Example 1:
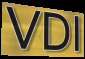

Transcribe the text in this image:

VDI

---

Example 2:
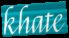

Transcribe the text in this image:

khate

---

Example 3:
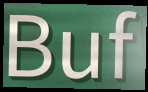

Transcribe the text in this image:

Buf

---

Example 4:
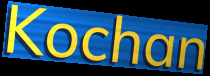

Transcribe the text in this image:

Kochan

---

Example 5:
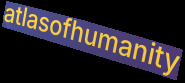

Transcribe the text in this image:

atlasofhumanity